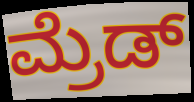
ಮ್ರೆಡ್